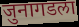
जुनागडला